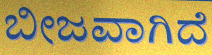
ಬೀಜವಾಗಿದೆ